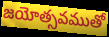
జయోత్సవముతో